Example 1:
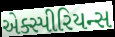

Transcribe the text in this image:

એક્સ્પીરિયન્સ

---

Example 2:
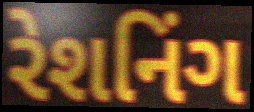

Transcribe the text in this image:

રેશનિંગ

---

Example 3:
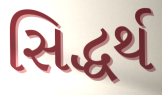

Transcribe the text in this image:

સિદ્ધર્થ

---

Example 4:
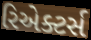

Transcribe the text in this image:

રિએક્ટર્સ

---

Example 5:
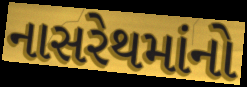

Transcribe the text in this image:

નાસરેથમાંનો